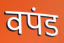
वपंड